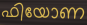
ഫിയോണ